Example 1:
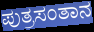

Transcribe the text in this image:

ಪುತ್ರಸಂತಾನ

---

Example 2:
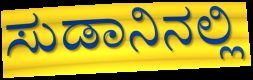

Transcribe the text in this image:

ಸುಡಾನಿನಲ್ಲಿ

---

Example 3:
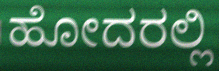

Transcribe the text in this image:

ಹೋದರಲ್ಲಿ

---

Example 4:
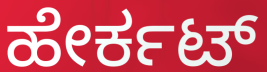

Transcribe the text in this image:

ಹೇರ್ಕಟ್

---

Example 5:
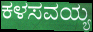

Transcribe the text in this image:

ಕಳಸವಯ್ಯ